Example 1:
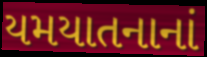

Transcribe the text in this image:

યમયાતનાનાં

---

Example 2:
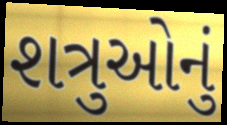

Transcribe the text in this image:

શત્રુઓનું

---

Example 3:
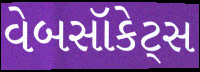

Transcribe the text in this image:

વેબસૉકેટ્સ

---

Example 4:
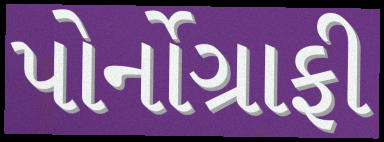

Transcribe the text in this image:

પોર્નોગ્રાફી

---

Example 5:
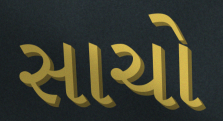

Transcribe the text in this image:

સાચો